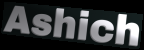
Ashich